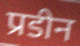
प्रडीन